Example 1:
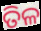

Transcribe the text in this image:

ତିଳ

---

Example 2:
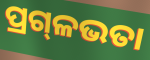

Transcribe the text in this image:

ପ୍ରଗ୍‍ଳଭତା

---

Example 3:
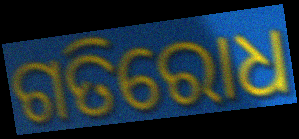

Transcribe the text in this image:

ଗତିରୋଧ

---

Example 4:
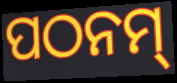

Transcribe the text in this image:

ପଠନମ୍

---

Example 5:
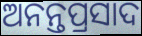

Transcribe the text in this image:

ଅନନ୍ତପ୍ରସାଦ